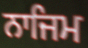
ਨਾਜਿਮ